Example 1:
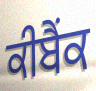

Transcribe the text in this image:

ਕੀਬੈਂਕ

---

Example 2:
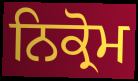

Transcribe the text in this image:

ਨਿਕ੍ਰੋਮ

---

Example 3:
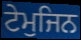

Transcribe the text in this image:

ਟੇਮੁਜਿਨ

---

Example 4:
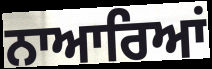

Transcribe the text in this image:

ਨਾਆਰਿਆਂ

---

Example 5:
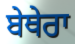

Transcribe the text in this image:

ਬੇਥੇਰਾ